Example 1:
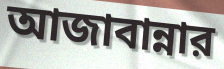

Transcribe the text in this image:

আজাবান্নার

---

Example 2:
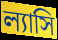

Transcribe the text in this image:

ল্যাসি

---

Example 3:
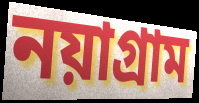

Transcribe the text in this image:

নয়াগ্রাম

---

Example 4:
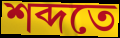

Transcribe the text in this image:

শব্দতে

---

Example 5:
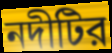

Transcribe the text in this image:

নদীটির